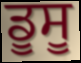
ਡੂਸੂ